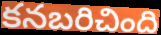
కనబరిచింది